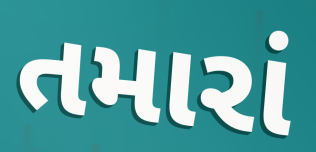
તમારાં